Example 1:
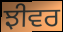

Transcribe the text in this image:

ਝੀਵਰ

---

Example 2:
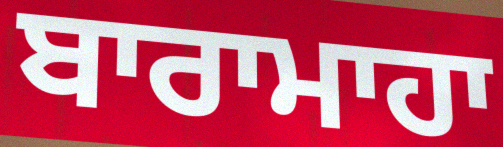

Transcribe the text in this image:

ਬਾਰਾਮਾਹਾ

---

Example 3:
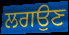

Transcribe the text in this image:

ਲਗਉਣ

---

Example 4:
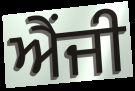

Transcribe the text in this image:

ਐਂਜੀ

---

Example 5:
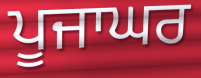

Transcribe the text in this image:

ਪੂਜਾਘਰ